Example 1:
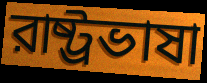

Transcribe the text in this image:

রাষ্ট্রভাষা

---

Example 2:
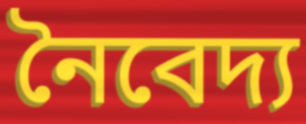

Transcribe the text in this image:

নৈবেদ্য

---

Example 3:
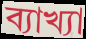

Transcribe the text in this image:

ব্যাখ্যা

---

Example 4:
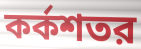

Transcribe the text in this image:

কর্কশতর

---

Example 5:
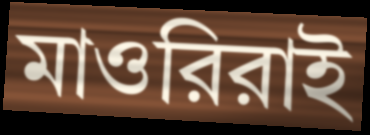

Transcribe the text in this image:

মাওরিরাই